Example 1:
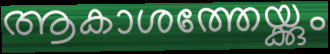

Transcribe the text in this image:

ആകാശത്തേയ്ക്കും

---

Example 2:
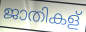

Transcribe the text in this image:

ജാതികള്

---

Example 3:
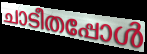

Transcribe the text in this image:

ചാടീതപ്പോൾ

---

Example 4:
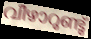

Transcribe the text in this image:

വീഴാറുണ്ടു്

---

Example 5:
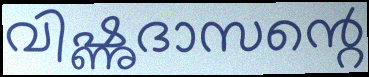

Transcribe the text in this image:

വിഷ്ണുദാസന്റെ